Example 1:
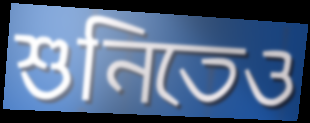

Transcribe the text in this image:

শুনিতেও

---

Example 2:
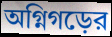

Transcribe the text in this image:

অগ্নিগড়ের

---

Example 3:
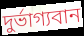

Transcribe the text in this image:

দুর্ভাগ্যবান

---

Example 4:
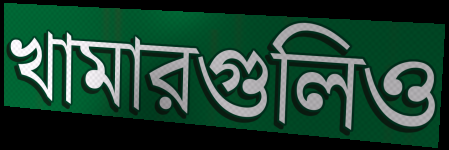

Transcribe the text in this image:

খামারগুলিও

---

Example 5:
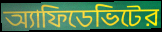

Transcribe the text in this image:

অ্যাফিডেভিটের